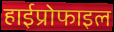
हाईप्रोफाइल